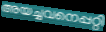
അയച്ചവനെപ്പറ്റി